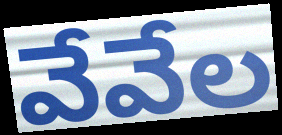
వేవేల